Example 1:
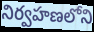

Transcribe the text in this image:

నిర్వహణలోని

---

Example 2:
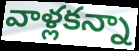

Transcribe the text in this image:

వాళ్లకన్నా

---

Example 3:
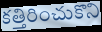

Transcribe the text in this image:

కత్తిరించుకొని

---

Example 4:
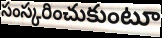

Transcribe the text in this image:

సంస్కరించుకుంటూ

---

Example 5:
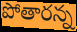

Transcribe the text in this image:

పోతారన్న